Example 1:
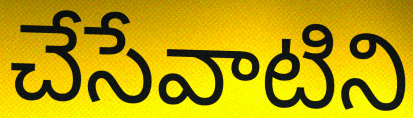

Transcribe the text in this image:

చేసేవాటిని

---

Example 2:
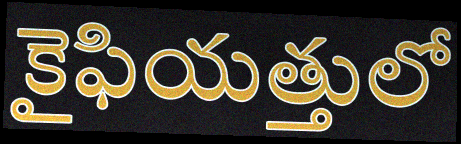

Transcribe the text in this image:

కైఫియత్తులో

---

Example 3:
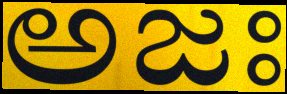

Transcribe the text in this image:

అజః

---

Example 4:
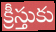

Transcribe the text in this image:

క్రీస్తుకు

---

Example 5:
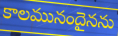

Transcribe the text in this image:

కాలమునందైనను